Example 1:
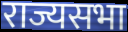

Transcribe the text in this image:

राज्यसभा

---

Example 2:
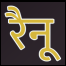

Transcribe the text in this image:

रैनू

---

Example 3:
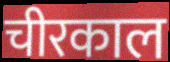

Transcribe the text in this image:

चीरकाल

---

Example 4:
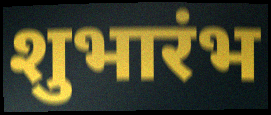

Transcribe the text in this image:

शुभारंभ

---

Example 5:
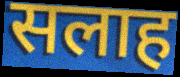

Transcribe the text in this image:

सलाह